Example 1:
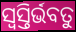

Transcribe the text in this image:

ସ୍ୱସ୍ତିର୍ଭବତୁ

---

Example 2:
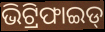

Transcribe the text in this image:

ଭିଟ୍ରିଫାଇଡ୍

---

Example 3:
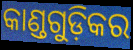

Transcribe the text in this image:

କାଣ୍ଡଗୁଡ଼ିକର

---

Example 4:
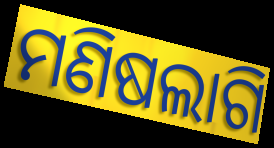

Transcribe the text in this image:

ମଣିଷଲାଗି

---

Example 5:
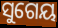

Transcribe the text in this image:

ସୁଗେୟ